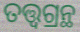
ତତ୍ତ୍ୱଗ୍ରନ୍ଥ